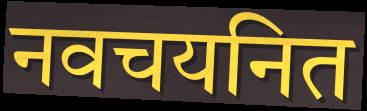
नवचयनित